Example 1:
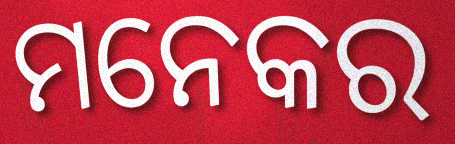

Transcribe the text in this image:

ମନେକର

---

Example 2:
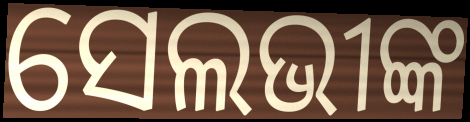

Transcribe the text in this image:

ସେଲଭୀଙ୍କ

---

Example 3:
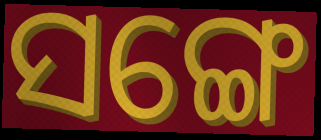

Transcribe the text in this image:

ସଙ୍ଗେ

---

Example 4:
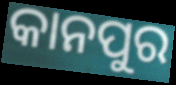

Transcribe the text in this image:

କାନପୁର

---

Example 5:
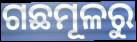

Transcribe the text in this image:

ଗଛମୂଳରୁ